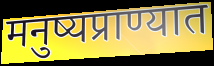
मनुष्यप्राण्यात